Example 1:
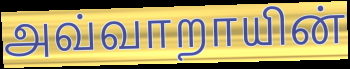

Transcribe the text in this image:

அவ்வாறாயின்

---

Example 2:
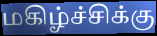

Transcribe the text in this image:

மகிழ்ச்சிக்கு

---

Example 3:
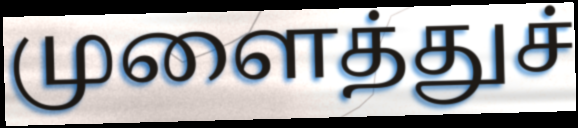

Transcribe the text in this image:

முளைத்துச்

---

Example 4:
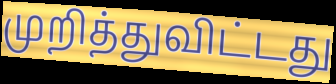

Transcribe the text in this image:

முறித்துவிட்டது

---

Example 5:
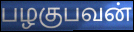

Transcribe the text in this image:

பழகுபவன்